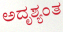
ಅದೃಶ್ಯಂತ